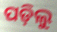
ପଡ଼ିଲୁ